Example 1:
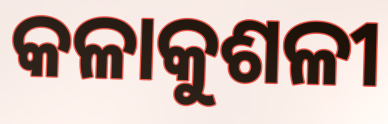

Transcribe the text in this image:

କଳାକୁଶଳୀ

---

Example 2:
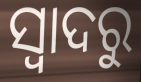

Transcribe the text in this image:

ସ୍ବାଦରୁ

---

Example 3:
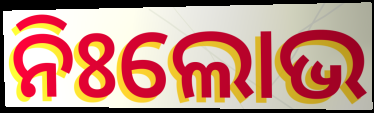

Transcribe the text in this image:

ନିଃଲୋଭ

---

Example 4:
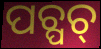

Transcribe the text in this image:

ପଚ୍ପଚ୍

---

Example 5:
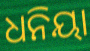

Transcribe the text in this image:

ଧନିୟା